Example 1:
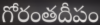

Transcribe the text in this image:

గోరంతదీపం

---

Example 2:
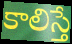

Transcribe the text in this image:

కాలిస్తే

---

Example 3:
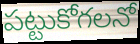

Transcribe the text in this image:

పట్టుకోగలనో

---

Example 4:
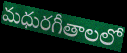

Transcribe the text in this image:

మధురగీతాలలో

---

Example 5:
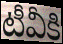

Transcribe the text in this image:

టీవీకి